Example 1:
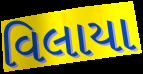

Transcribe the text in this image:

વિલાયા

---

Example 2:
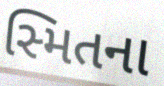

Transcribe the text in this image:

સ્મિતના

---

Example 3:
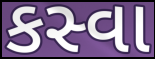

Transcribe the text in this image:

કસ્વા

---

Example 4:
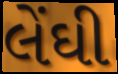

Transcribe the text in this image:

લેંઘી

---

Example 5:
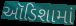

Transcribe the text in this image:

ઑડિશામાં